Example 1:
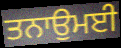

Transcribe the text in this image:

ਤਨਾਉਮਈ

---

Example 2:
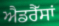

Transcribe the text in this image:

ਐਡਰੈੱਸਾਂ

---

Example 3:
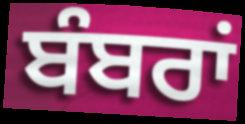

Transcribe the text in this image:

ਬੰਬਰਾਂ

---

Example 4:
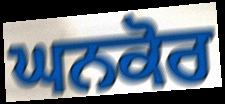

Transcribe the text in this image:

ਘਨਕੋਰ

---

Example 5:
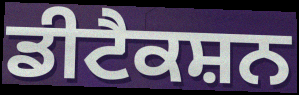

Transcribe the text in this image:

ਡੀਟੈਕਸ਼ਨ